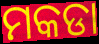
ମକଡା